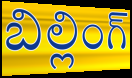
బిల్లింగ్